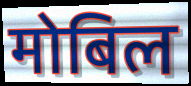
मोबिल